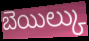
బెయిల్కు